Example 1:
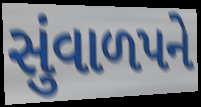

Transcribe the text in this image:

સુંવાળપને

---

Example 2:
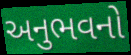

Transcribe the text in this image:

અનુભવનો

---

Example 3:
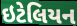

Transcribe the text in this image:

ઇટેલિયન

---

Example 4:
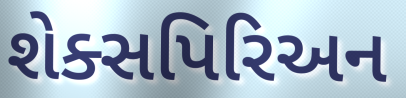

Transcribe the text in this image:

શેક્સપિરિઅન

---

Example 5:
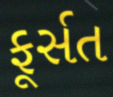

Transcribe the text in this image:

ફૂર્સત